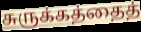
சுருக்கத்தைத்